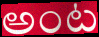
అంట